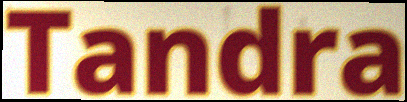
Tandra